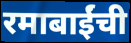
रमाबाईंची